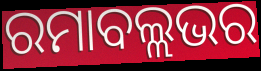
ରମାବଲ୍ଲଭର